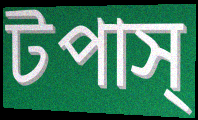
টপাস্